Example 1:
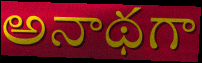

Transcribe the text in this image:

అనాథగా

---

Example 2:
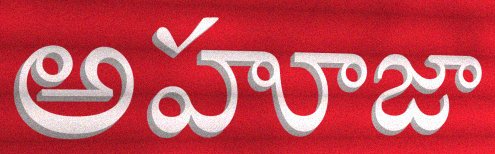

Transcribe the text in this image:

అహూజా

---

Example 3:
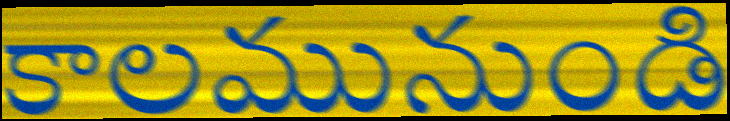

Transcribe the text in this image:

కాలమునుండి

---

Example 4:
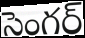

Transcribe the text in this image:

సెంగర్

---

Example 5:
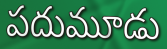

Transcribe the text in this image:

పదుమూడు